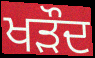
ਖੜੌਦ